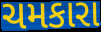
ચમકારા